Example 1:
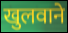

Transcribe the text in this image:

खुलवाने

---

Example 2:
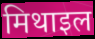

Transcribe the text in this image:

मिथाइल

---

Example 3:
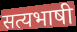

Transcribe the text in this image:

सत्यभाषी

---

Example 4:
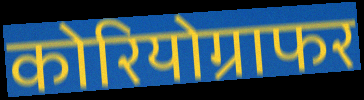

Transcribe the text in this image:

कोरियोग्राफर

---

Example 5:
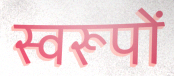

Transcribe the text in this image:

स्वरूपों